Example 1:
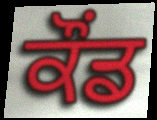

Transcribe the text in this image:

ਕੌਂਡ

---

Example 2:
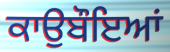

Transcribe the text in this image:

ਕਾਉਬੌਇਆਂ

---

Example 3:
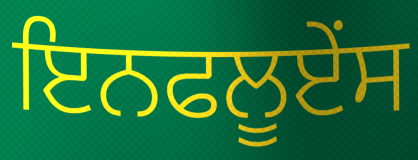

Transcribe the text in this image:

ਇਨਫਲੂਏਂਸ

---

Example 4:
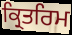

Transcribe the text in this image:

ਕ੍ਰਿਤਰਿਮ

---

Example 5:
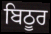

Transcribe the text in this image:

ਬਿਠੂਰ